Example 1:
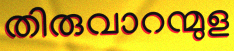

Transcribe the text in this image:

തിരുവാറന്മുള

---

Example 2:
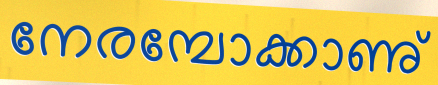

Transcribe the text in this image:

നേരമ്പോക്കാണു്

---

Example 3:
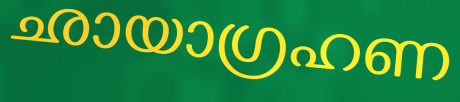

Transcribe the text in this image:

ഛായാഗ്രഹണ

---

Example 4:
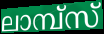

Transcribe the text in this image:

ലാമ്പ്സ്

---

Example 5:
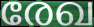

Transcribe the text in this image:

രേഖ